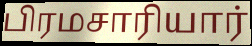
பிரமசாரியார்